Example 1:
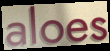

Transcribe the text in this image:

aloes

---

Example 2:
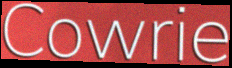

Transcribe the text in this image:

Cowrie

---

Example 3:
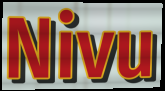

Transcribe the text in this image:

Nivu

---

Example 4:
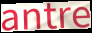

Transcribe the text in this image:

antre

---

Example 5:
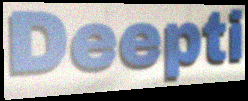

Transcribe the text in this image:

Deepti